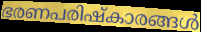
ഭരണപരിഷ്കാരങ്ങൾ